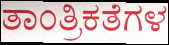
ತಾಂತ್ರಿಕತೆಗಳ